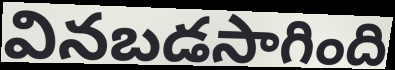
వినబడసాగింది